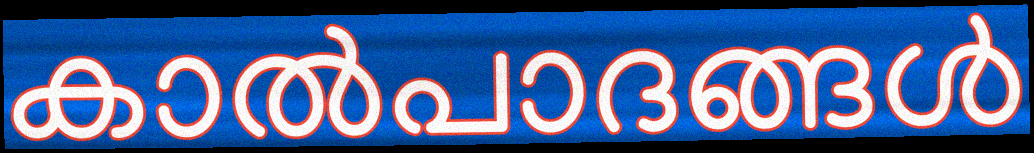
കാൽപാദങ്ങൾ